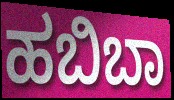
ಹಬಿಬಾ